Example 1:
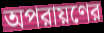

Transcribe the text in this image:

অপরায়ণের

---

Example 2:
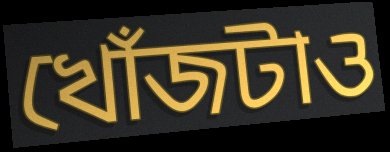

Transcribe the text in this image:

খোঁজটাও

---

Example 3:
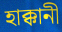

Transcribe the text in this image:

হাক্কানী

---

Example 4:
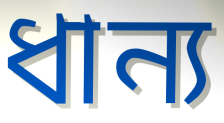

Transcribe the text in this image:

ধান্য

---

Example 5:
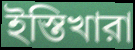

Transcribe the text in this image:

ইস্তিখারা